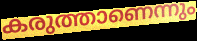
കരുത്താണെന്നും